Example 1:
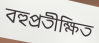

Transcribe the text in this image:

বহুপ্রতীক্ষিত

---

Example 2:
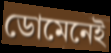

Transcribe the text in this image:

ডোমেনেই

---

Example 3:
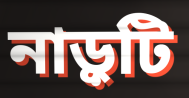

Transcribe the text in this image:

নাড়ুটি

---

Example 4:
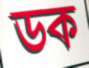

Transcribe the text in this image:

ডক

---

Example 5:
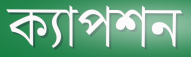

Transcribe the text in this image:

ক্যাপশন